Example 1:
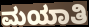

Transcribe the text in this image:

ಮಯಾತಿ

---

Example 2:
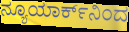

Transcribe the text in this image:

ನ್ಯೂಯಾರ್ಕ್‌ನಿಂದ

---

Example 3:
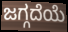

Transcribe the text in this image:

ಜಗ್ಗದೆಯೆ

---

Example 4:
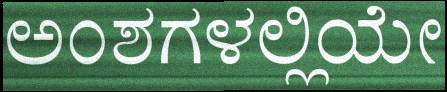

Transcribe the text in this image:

ಅಂಶಗಳಲ್ಲಿಯೇ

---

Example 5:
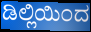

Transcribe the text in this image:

ಡಿಲ್ಲಿಯಿಂದ